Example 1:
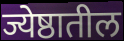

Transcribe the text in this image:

ज्येष्ठातील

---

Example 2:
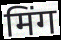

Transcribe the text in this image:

मिंग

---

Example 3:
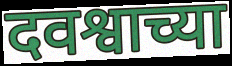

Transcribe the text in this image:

दवश्वाच्या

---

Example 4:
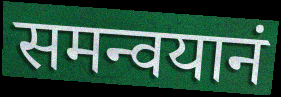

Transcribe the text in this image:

समन्वयानं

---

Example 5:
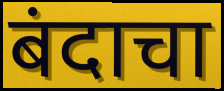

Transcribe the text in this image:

बंदाचा